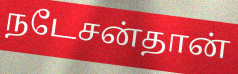
நடேசன்தான்